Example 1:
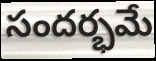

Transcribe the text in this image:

సందర్భమే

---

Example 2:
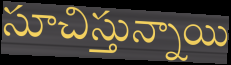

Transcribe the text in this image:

సూచిస్తున్నాయి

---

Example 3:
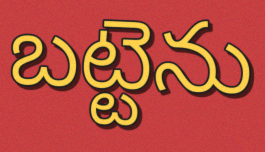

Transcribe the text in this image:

బట్టెను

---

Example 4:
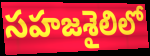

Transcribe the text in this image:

సహజశైలిలో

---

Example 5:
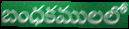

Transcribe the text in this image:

బంధకములలో